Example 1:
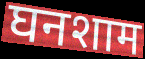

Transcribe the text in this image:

घनशाम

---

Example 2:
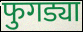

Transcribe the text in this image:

फुगड्या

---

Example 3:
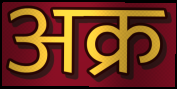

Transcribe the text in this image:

अक्र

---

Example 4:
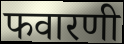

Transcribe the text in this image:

फवारणी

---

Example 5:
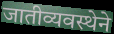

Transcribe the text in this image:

जातीव्यवस्थेने